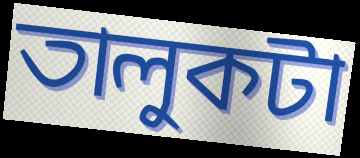
তালুকটা